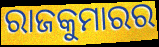
ରାଜକୁମାରର